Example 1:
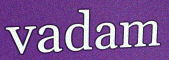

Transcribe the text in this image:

vadam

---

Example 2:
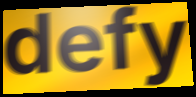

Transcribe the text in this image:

defy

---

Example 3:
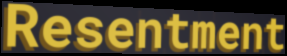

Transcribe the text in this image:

Resentment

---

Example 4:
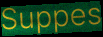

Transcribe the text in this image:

Suppes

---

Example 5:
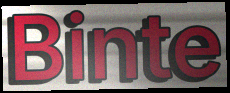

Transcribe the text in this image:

Binte